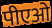
पीएओ